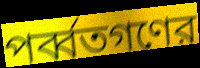
পর্ব্বতগণের